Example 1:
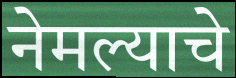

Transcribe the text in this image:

नेमल्याचे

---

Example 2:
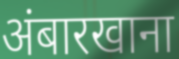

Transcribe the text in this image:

अंबारखाना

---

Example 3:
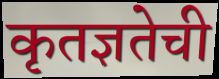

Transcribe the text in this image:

कृतज्ञतेची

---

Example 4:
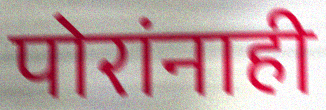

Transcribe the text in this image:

पोरांनाही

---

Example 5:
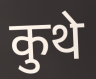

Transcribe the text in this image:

कुथे